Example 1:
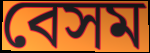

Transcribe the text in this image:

বেসম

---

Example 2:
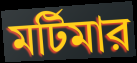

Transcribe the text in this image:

মর্টিমার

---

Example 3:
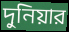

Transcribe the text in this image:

দুনিয়ার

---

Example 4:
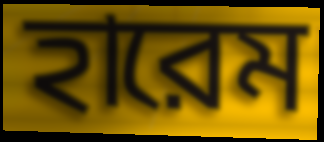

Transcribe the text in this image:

হারেম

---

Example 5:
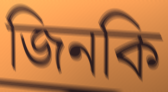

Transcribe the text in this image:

জিনকি